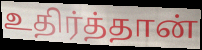
உதிர்த்தான்